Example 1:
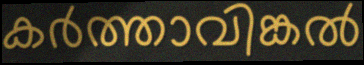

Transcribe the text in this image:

കർത്താവിങ്കൽ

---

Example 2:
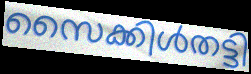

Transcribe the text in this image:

സൈക്കിൾതട്ടി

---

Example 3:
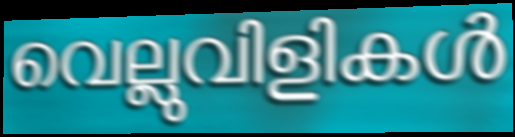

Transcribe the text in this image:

വെല്ലുവിളികൾ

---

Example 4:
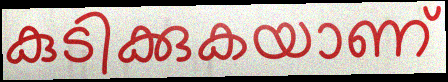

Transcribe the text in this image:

കുടിക്കുകയാണ്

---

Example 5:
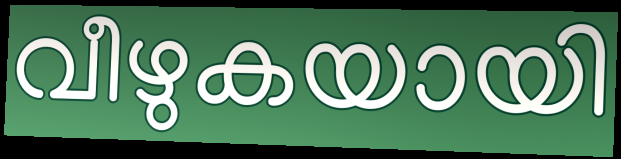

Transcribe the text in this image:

വീഴുകയായി